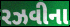
રઝવીના